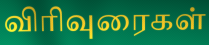
விரிவுரைகள்